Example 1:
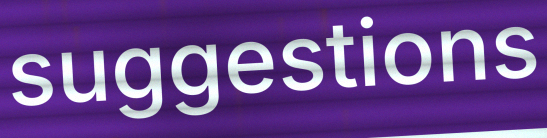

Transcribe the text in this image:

suggestions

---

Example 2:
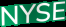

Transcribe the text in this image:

NYSE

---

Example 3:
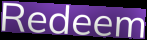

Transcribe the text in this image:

Redeem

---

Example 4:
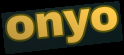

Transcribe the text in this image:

onyo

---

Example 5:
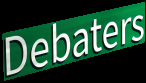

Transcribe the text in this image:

Debaters